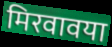
मिरवावया